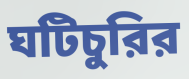
ঘটিচুরির